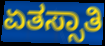
ಏತಸ್ಸಾತಿ